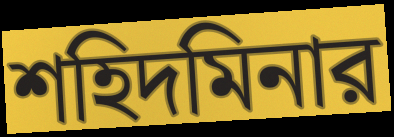
শহিদমিনার